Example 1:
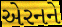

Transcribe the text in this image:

એરનને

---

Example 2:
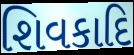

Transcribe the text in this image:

શિવકાદિ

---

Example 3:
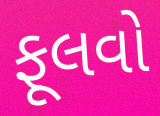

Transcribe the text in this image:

ફૂલવો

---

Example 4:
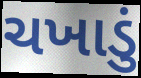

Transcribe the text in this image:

ચખાડું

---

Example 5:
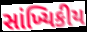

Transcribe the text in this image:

સાંખ્યિકીય